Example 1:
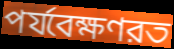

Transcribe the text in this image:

পর্যবেক্ষণরত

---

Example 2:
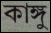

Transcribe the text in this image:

কাঙ্গু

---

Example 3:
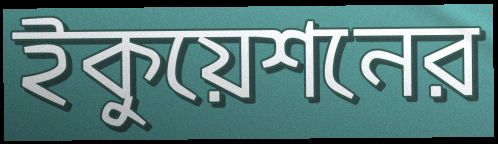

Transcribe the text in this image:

ইকুয়েশনের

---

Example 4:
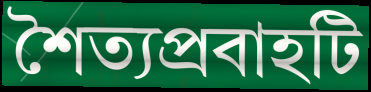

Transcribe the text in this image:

শৈত্যপ্রবাহটি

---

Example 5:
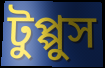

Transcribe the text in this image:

টুপ্পুস